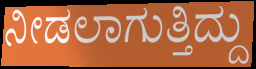
ನೀಡಲಾಗುತ್ತಿದ್ದು